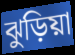
ঝুড়িয়া